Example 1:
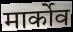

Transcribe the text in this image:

मार्कोव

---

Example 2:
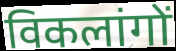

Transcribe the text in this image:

विकलांगों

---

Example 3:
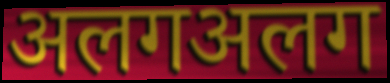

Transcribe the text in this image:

अलगअलग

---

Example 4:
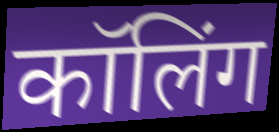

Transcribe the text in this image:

कॉलिंग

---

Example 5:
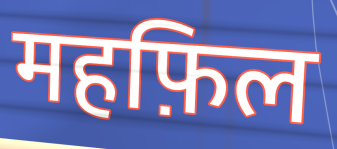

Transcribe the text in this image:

महफ़िल